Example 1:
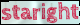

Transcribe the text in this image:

staright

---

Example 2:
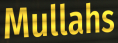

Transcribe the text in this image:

Mullahs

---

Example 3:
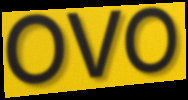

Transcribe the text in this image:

OVO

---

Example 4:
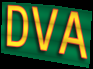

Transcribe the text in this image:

DVA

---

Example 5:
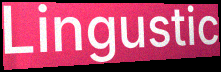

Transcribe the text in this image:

Lingustic